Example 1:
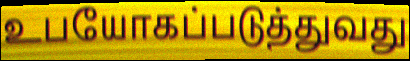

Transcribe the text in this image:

உபயோகப்படுத்துவது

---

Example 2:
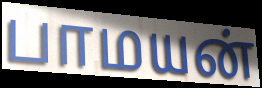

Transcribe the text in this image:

பாமயன்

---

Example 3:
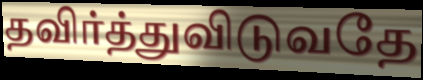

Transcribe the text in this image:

தவிர்த்துவிடுவதே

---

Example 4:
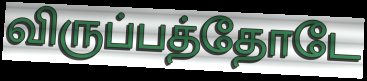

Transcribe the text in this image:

விருப்பத்தோடே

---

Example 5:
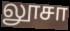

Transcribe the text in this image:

லூசா